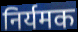
निर्यमक